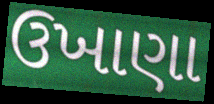
ઉખાણા